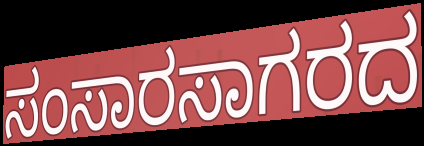
ಸಂಸಾರಸಾಗರದ